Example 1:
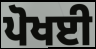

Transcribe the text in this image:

ਪੋਖਈ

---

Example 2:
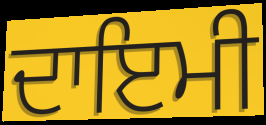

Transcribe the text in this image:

ਦਾਇਮੀ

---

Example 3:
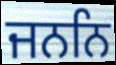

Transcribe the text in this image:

ਜਨਨਿ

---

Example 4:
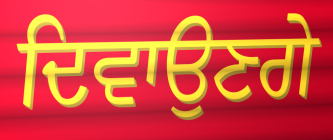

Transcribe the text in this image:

ਦਿਵਾਉਣਗੇ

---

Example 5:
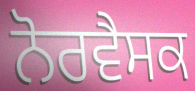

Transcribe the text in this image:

ਨੋਰਵੈਸਕ